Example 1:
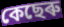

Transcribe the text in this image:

কেছেৰু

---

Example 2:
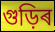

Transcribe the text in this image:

গুড়িৰ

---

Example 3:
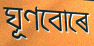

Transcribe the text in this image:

ঘূণবোৰে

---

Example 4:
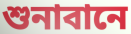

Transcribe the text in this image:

শুনাবানে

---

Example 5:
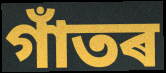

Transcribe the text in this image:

গাঁতৰ